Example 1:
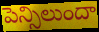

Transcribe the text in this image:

పెన్సిలుందా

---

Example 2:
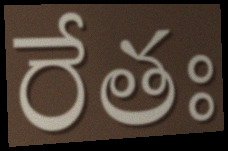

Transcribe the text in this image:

రేతః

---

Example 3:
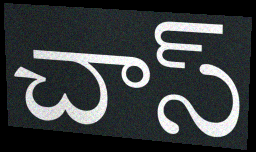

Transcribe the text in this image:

చాస్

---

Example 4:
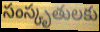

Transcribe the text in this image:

సంస్కృతులకు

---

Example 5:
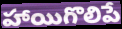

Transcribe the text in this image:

హాయిగొలిపే